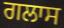
ਗਲਾਸ